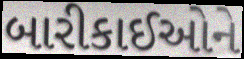
બારીકાઈઓને